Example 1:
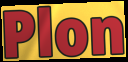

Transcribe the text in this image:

Plon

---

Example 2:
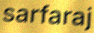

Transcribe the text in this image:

sarfaraj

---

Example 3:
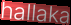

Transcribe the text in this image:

hallaka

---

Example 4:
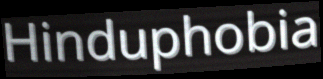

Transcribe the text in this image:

Hinduphobia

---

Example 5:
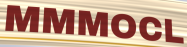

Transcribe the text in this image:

MMMOCL